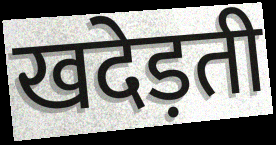
खदेड़ती